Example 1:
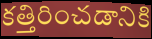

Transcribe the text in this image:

కత్తిరించడానికి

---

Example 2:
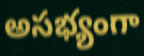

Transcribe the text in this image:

అసభ్యంగా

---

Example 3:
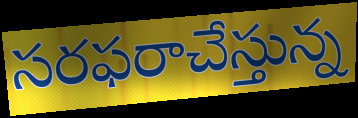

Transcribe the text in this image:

సరఫరాచేస్తున్న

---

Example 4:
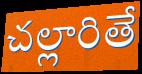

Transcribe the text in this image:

చల్లారితే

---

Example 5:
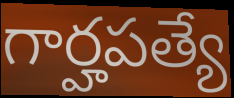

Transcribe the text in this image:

గార్హపత్యే